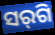
ସର୍‌ଗି